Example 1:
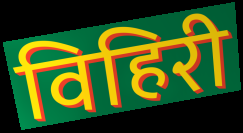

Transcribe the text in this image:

विहिरी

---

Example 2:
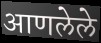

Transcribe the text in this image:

आणलेले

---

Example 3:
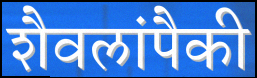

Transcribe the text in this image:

शैवलांपैकी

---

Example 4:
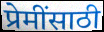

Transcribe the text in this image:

प्रेमींसाठी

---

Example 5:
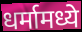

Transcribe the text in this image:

धर्मामध्ये